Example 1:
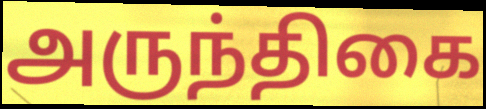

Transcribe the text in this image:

அருந்திகை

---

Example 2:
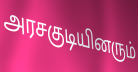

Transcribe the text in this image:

அரசகுடியினரும்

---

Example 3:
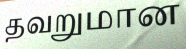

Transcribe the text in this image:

தவறுமான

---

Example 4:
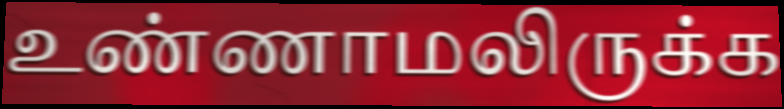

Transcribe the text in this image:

உண்ணாமலிருக்க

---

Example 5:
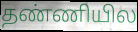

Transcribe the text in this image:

தண்ணியில